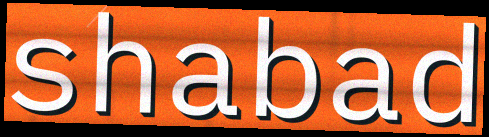
shabad